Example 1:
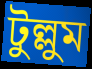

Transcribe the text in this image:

টুল্লুম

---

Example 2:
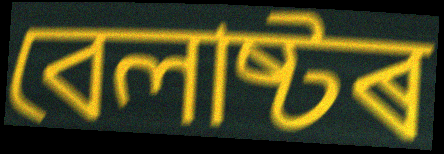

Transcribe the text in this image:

বেলাষ্টৰ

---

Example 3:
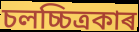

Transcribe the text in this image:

চলচ্চিত্ৰকাৰ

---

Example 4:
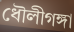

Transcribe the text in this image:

ধৌলীগঙ্গা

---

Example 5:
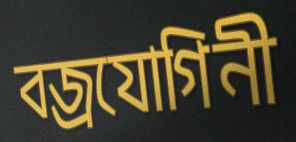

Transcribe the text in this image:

বজ্ৰযোগিনী